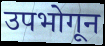
उपभोगून